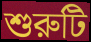
শুরুটি